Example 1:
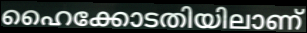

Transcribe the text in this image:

ഹൈക്കോടതിയിലാണ്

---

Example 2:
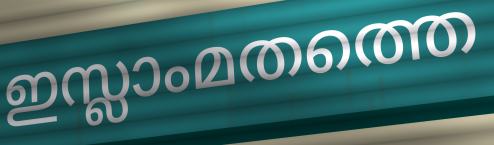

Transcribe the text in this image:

ഇസ്ലാംമതത്തെ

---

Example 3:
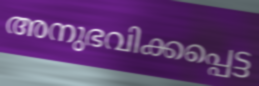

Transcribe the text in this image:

അനുഭവിക്കപ്പെട്ട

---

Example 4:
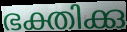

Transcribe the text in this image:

ഭക്തിക്കു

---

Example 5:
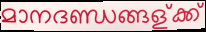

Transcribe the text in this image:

മാനദണ്ഡങ്ങള്ക്ക്